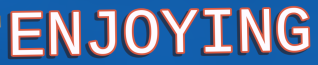
ENJOYING